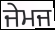
ਜੇਮਜ